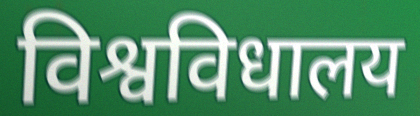
विश्वविधालय